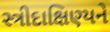
સ્ત્રીદાક્ષિણ્યને